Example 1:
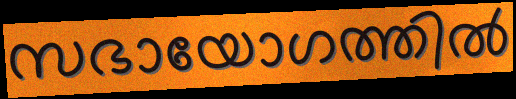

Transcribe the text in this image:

സഭായോഗത്തിൽ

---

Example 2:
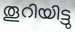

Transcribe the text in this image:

തൂറിയിട്ടു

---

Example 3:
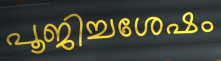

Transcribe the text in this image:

പൂജിച്ചശേഷം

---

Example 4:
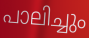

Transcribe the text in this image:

പാലിച്ചും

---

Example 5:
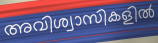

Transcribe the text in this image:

അവിശ്വാസികളിൽ